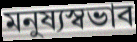
মনুষ্যস্বভাব